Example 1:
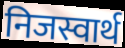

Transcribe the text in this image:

निजस्वार्थ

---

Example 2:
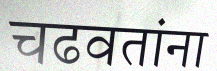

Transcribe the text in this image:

चढवतांना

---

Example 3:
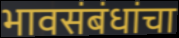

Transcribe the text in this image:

भावसंबंधांचा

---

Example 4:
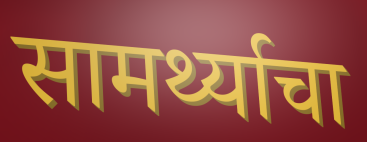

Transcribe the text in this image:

सामर्थ्याचा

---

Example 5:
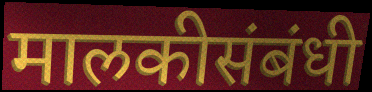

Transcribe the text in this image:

मालकीसंबंधी